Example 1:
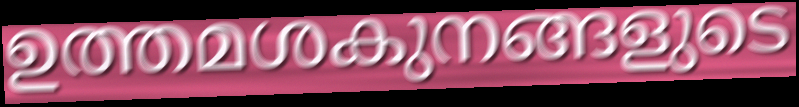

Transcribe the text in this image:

ഉത്തമശകുനങ്ങളുടെ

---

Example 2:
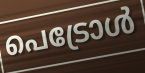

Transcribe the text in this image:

പെട്രോൾ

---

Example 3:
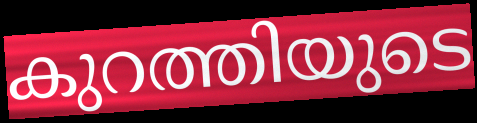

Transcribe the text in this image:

കുറത്തിയുടെ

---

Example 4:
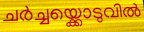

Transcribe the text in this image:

ചർച്ചയ്ക്കൊടുവിൽ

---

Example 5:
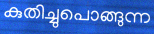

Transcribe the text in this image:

കുതിച്ചുപൊങ്ങുന്ന